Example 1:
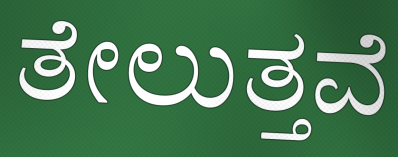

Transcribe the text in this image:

ತೇಲುತ್ತವೆ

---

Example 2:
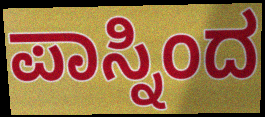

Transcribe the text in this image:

ಪಾಸ್ನಿಂದ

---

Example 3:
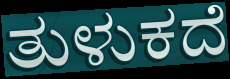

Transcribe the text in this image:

ತುಳುಕದೆ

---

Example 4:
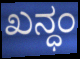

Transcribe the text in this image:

ಖನ್ಧಂ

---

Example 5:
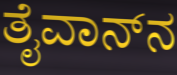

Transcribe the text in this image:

ತೈವಾನ್‌ನ